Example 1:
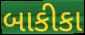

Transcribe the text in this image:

બાકીકા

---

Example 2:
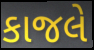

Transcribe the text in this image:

કાજલે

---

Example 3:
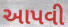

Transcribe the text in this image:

આપવી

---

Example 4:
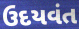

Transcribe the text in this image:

ઉદયવંત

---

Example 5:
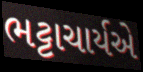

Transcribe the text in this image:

ભટ્ટાચાર્યએ